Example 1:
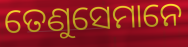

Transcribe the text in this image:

ତେଣୁସେମାନେ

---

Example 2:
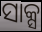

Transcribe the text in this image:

ସାକ୍ସ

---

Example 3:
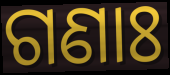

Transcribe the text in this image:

ଗଣାଃ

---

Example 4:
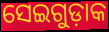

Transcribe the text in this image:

ସେଇଗୁଡ଼ାକ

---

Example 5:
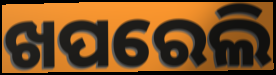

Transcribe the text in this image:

ଖପରେଲି